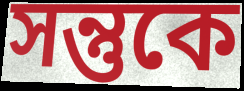
সন্তুকে